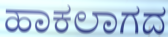
ಹಾಕಲಾಗದ